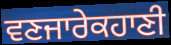
ਵਣਜਾਰੇਕਹਾਣੀ